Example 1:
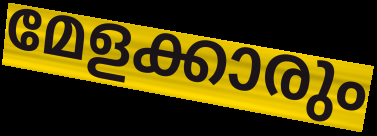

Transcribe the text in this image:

മേളക്കാരും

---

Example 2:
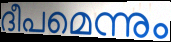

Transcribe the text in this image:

ദീപമെന്നും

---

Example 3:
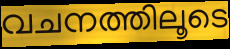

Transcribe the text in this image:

വചനത്തിലൂടെ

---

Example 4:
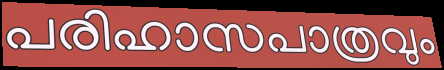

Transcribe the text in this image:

പരിഹാസപാത്രവും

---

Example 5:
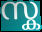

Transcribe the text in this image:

സ്ക